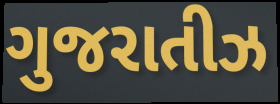
ગુજરાતીઝ